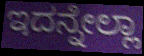
ಇದನ್ನೇಲ್ಲಾ